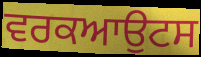
ਵਰਕਆਉਟਸ